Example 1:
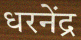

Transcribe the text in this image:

धरनेंद्र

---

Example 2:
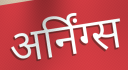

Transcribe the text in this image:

अर्निंग्स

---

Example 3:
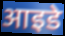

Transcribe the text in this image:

आइडे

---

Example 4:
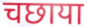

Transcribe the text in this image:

चछाया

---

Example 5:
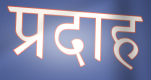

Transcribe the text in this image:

प्रदाह